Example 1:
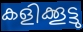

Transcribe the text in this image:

കളിക്കൂട്ടു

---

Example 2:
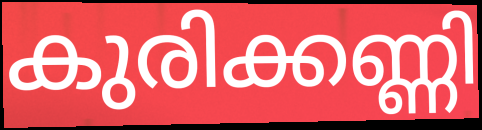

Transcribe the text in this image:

കുരിക്കണ്ണി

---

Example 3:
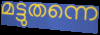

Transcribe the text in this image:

മട്ടുതന്നെ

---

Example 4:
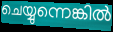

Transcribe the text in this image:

ചെയ്യുന്നെങ്കിൽ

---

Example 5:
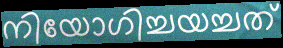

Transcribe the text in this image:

നിയോഗിച്ചയച്ചത്